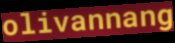
olivannang